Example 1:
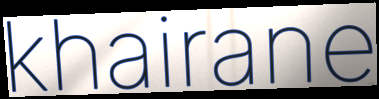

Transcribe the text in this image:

khairane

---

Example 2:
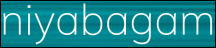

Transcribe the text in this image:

niyabagam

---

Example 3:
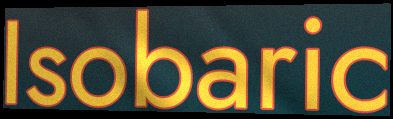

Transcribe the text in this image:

Isobaric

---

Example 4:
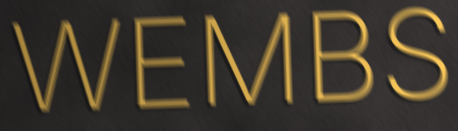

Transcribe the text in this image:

WEMBS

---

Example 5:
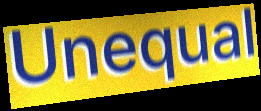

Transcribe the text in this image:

Unequal